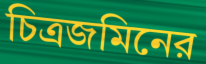
চিত্রজমিনের